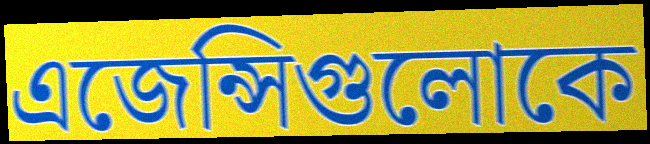
এজেন্সিগুলোকে